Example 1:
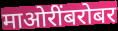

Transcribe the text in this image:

माओरींबरोबर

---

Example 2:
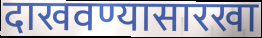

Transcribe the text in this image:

दाखवण्यासारखा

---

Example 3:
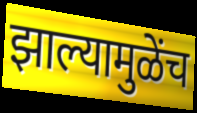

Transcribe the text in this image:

झाल्यामुळेंच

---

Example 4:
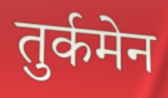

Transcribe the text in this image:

तुर्कमेन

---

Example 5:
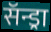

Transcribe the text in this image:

सॅन्ड्रा